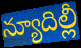
న్యూదిల్లీ